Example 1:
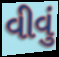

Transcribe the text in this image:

વીવું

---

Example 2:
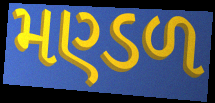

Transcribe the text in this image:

મણ્ડળ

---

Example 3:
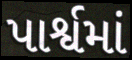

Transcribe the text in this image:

પાર્શ્વમાં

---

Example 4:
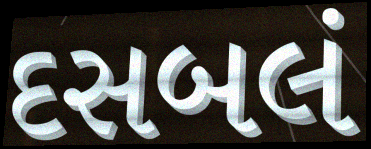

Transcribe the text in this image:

દસબલં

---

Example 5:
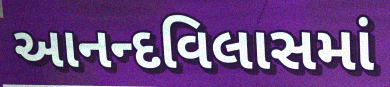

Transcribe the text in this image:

આનન્દવિલાસમાં